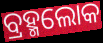
ବ୍ରହ୍ମଲୋକ